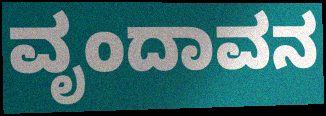
ವೃಂದಾವನ